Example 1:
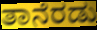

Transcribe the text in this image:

ತಾನೆರಡು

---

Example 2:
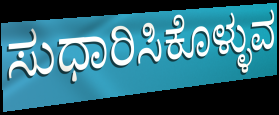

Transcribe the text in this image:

ಸುಧಾರಿಸಿಕೊಳ್ಳುವ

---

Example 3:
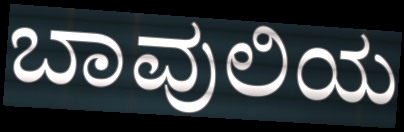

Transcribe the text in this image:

ಬಾವುಲಿಯ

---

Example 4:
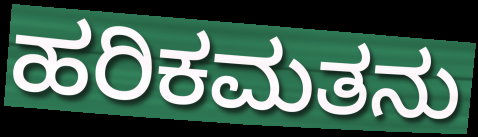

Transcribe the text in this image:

ಹರಿಕಮತನು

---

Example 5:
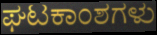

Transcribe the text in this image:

ಘಟಕಾಂಶಗಳು